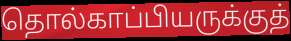
தொல்காப்பியருக்குத்